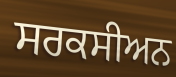
ਸਰਕਸੀਅਨ